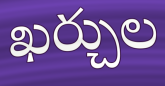
ఖర్చుల